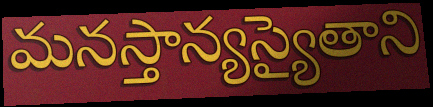
మనస్తాన్యస్యైతాని